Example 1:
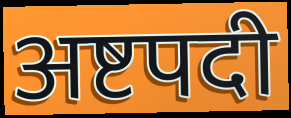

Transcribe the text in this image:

अष्टपदी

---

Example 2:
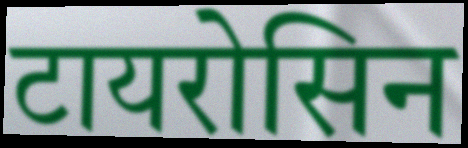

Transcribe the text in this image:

टायरोसिन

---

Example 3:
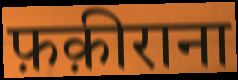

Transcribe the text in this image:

फ़क़ीराना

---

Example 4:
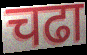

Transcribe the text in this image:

चढा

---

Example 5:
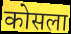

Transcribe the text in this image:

कोसला